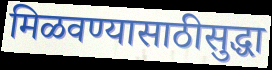
मिळवण्यासाठीसुद्धा